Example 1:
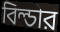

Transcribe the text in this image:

বিল্ডার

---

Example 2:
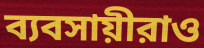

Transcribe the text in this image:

ব্যবসায়ীরাও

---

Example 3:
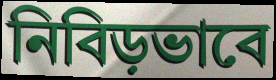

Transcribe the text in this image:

নিবিড়ভাবে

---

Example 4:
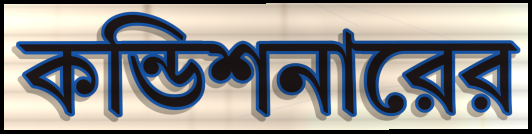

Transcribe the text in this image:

কন্ডিশনারের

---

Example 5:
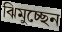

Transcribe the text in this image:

ঝিমুচ্ছেন